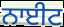
ਨਾਈਟ